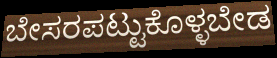
ಬೇಸರಪಟ್ಟುಕೊಳ್ಳಬೇಡ